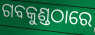
ଗବକୁଣ୍ଡଠାରେ